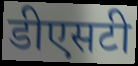
डीएसटी